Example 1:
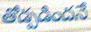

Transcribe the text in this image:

తోడ్పడిందనే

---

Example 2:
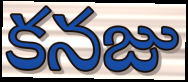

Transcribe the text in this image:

కనజు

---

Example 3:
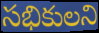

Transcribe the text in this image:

సభికులని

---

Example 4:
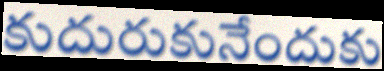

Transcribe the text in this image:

కుదురుకునేందుకు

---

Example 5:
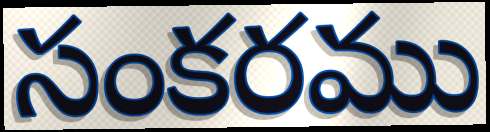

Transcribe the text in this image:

సంకరము